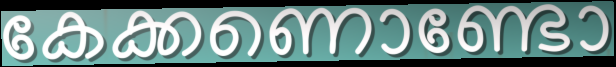
കേക്കണൊണ്ടോ